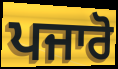
ਪਜਾਰੋ